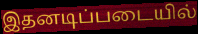
இதனடிப்படையில்